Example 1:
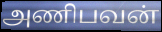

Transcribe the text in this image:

அணிபவன்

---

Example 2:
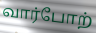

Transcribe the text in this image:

வார்போற்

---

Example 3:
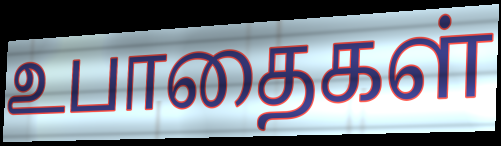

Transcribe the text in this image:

உபாதைகள்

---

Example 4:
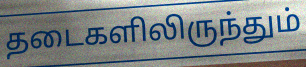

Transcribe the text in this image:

தடைகளிலிருந்தும்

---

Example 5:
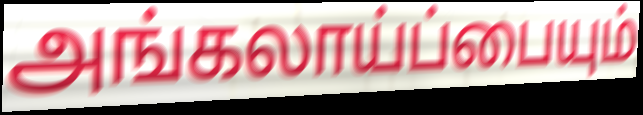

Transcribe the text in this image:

அங்கலாய்ப்பையும்